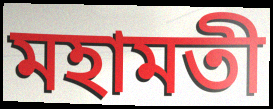
মহামতী